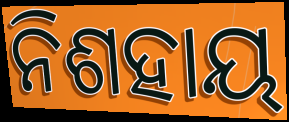
ନିଶହାୟ